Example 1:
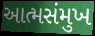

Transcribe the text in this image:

આત્મસંમુખ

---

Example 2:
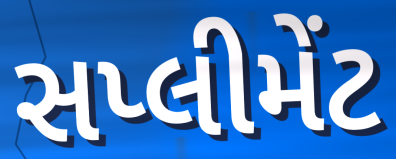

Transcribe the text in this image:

સપ્લીમેંટ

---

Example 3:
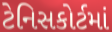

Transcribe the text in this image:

ટેનિસકોર્ટમાં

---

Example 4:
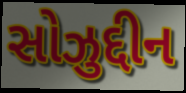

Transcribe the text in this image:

સોઝુદ્દીન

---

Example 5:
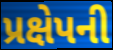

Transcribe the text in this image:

પ્રક્ષેપની